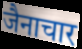
जैनाचार